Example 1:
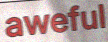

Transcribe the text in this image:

aweful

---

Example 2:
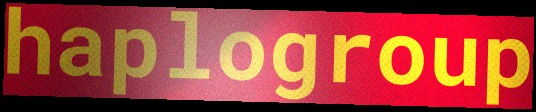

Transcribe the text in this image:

haplogroup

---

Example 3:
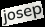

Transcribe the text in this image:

josep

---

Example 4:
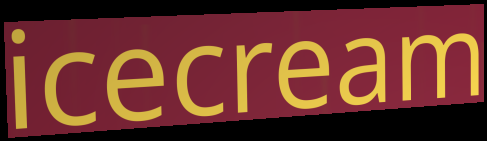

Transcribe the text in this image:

icecream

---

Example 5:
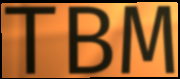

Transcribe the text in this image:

TBM